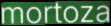
mortoza